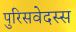
पुरिसवेदस्स